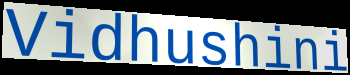
Vidhushini